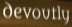
devoutly